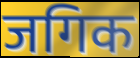
जगिक